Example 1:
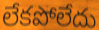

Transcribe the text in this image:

లేకపోలేదు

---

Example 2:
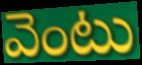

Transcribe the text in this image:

వెంటు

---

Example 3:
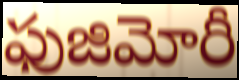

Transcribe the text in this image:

ఫుజిమోరీ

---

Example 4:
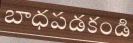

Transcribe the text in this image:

బాధపడకండి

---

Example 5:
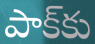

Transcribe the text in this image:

పాక్‌కు